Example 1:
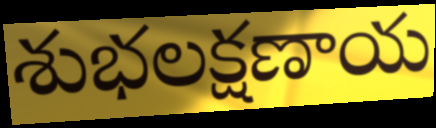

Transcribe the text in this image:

శుభలక్షణాయ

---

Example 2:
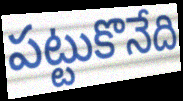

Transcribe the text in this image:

పట్టుకొనేది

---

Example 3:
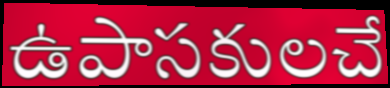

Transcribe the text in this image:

ఉపాసకులచే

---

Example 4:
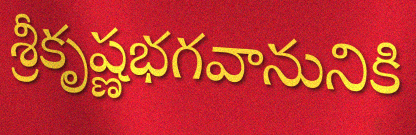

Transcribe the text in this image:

శ్రీకృష్ణభగవానునికి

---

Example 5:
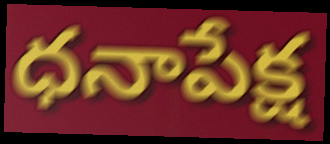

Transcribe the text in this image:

ధనాపేక్ష